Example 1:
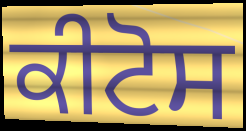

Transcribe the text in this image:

ਕੀਟੋਸ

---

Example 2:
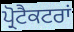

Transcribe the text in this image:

ਪ੍ਰੋਟੈਕਟਰਾਂ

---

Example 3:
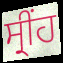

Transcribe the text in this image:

ਸ੍ਰੀਂਹ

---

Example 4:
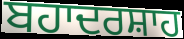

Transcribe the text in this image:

ਬਹਾਦਰਸ਼ਾਹ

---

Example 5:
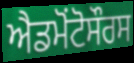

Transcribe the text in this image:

ਐਡਮੋਂਟੋਸੌਰਸ